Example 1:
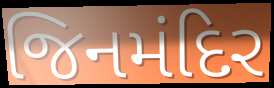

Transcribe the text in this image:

જિનમંદિર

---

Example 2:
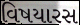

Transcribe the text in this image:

વિષયારસ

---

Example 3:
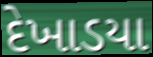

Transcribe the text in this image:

દેખાડયા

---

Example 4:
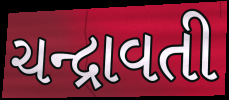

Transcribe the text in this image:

ચન્દ્રાવતી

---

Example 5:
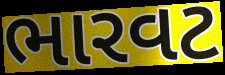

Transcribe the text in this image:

ભારવટ